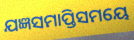
ଯଜ୍ଞସମାପ୍ତିସମୟେ